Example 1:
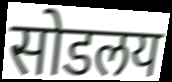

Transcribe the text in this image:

सोडलय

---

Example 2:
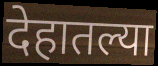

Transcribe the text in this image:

देहातल्या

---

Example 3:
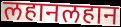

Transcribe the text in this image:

लहानलहान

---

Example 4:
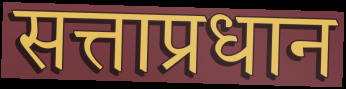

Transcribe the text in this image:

सत्ताप्रधान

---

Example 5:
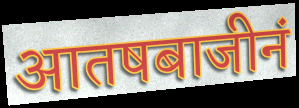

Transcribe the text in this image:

आतषबाजीनं